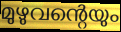
മുഴുവന്റെയും